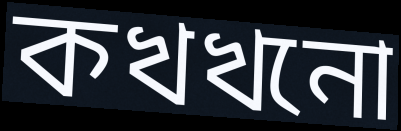
কখখনো